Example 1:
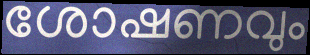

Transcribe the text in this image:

ശോഷണവും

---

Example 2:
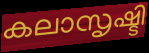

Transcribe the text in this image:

കലാസൃഷ്ടി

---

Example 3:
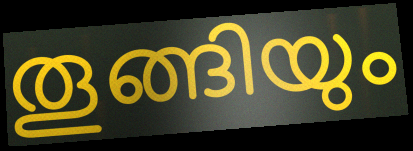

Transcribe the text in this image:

തൂങ്ങിയും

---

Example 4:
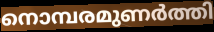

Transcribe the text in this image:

നൊമ്പരമുണർത്തി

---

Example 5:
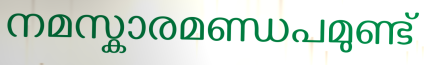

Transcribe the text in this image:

നമസ്കാരമണ്ഡപമുണ്ട്